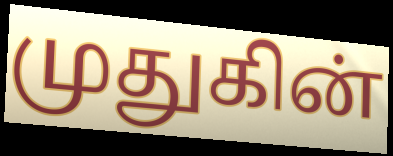
முதுகின்